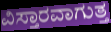
ವಿಸ್ತಾರವಾಗುತ್ತ